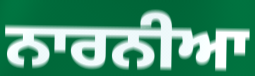
ਨਾਰਨੀਆ